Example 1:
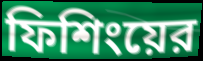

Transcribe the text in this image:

ফিশিংয়ের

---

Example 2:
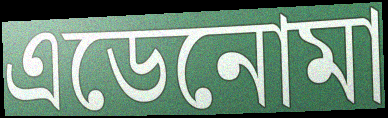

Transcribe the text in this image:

এডেনোমা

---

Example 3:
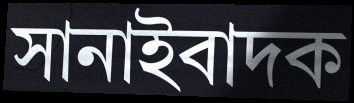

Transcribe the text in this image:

সানাইবাদক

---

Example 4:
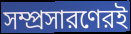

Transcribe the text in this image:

সম্প্রসারণেরই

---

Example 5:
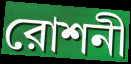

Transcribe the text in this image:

রোশনী